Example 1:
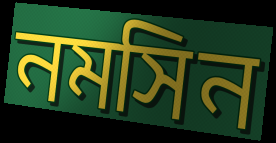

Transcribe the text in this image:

নমসিন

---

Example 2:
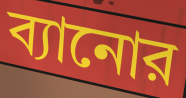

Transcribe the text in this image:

ব্যানোর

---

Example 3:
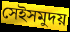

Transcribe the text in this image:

সেইসমুদয়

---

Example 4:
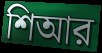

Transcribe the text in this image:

শিআর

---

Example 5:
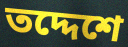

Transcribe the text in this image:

তদ্দেশে